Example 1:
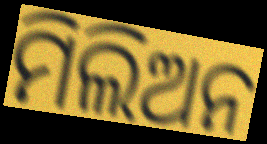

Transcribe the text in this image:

ମିଲିଅନ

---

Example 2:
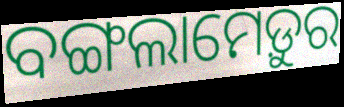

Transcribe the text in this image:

ବଙ୍ଗଲାମେଡ଼ୁର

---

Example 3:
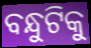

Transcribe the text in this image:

ବନ୍ଧୁଟିକୁ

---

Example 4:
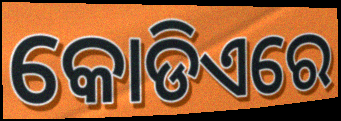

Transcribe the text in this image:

କୋଡିଏରେ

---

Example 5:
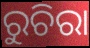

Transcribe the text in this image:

ରୁଚିରା